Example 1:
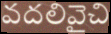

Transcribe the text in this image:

వదలివైచి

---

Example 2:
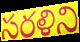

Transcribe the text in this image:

సరళిని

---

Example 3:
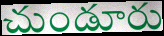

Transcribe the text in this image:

చుండూరు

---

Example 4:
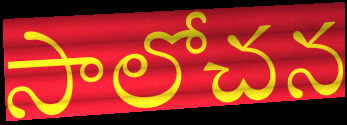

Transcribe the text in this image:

సాలోచన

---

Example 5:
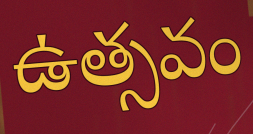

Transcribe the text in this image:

ఉత్సవం